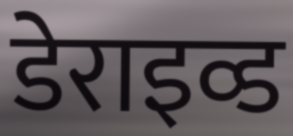
डेराइव्ड